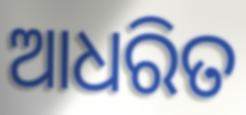
ଆଧରିତ